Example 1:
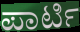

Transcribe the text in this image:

ಪಾರ್ಟಿ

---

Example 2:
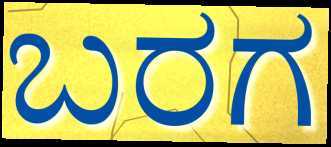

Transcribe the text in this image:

ಬರಗ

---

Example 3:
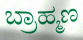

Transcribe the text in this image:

ಬ್ರಾಹ್ಮಣ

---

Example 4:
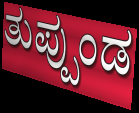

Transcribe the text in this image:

ತುಪ್ಪುಂಡ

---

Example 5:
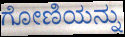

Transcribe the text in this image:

ಗೋಣಿಯನ್ನು